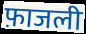
फ़ाजली